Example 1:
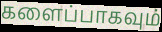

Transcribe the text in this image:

களைப்பாகவும்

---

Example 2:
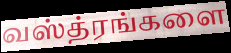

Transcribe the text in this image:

வஸ்த்ரங்களை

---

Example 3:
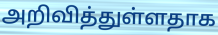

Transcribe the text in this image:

அறிவித்துள்ளதாக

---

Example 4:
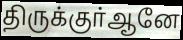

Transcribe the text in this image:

திருக்குர்ஆனே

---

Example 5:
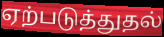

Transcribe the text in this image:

ஏற்படுத்துதல்